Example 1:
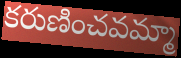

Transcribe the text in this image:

కరుణించవమ్మా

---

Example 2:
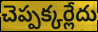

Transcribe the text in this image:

చెప్పక్కర్లేదు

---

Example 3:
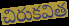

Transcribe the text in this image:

చిరుకవిత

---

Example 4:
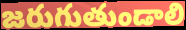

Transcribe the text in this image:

జరుగుతుండాలి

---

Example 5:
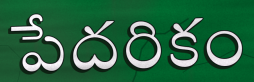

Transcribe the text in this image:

పేదరికం